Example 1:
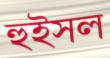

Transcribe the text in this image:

হুইসল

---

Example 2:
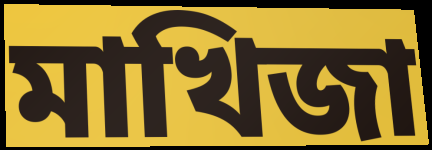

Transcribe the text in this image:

মাখিজা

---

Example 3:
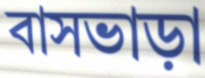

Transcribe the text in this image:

বাসভাড়া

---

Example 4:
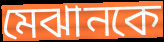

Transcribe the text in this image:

মেঝানকে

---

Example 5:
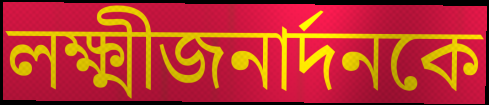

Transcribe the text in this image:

লক্ষ্মীজনার্দনকে